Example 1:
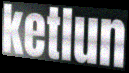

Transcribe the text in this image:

ketlun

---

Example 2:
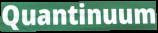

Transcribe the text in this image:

Quantinuum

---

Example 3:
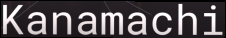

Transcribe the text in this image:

Kanamachi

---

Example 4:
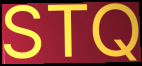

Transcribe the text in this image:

STQ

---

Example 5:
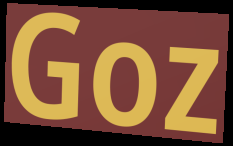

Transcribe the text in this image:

Goz